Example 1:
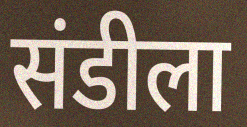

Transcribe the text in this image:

संडीला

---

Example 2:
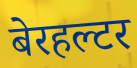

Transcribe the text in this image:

बेरहल्टर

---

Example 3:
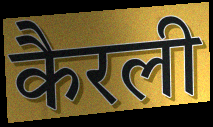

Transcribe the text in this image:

कैरली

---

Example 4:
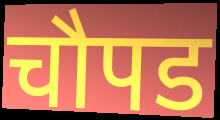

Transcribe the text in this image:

चौपड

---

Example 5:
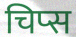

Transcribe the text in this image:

चिप्‍स